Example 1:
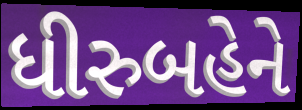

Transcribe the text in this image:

ધીરુબહેને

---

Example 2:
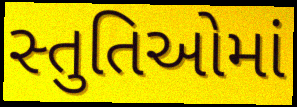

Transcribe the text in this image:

સ્તુતિઓમાં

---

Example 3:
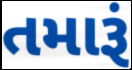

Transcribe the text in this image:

તમારૂં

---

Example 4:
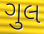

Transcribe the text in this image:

ગુલ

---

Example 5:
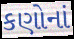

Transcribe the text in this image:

કણોનાં